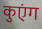
कुएंग